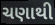
ચણાથી